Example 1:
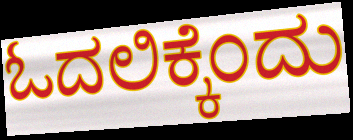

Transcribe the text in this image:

ಓದಲಿಕ್ಕೆಂದು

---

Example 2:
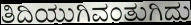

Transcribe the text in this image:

ತಿದಿಯುಗಿವಂತುಗಿದು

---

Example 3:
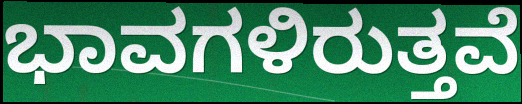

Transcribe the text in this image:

ಭಾವಗಳಿರುತ್ತವೆ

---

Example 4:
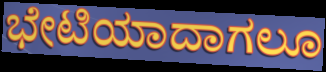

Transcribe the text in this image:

ಭೇಟಿಯಾದಾಗಲೂ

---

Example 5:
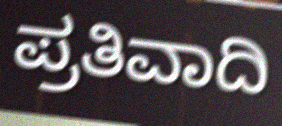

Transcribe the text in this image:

ಪ್ರತಿವಾದಿ